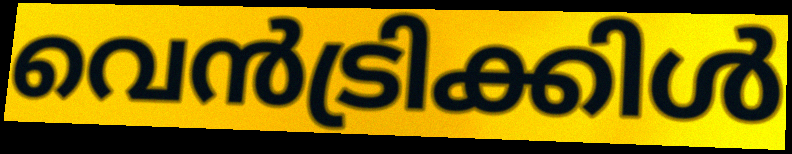
വെൻട്രിക്കിൾ